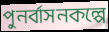
পুনর্বাসনকল্পে